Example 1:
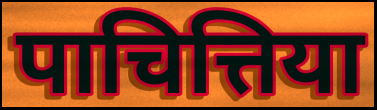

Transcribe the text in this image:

पाचित्तिया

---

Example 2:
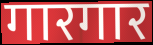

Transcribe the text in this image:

गारगार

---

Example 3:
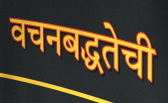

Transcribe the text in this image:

वचनबद्धतेची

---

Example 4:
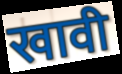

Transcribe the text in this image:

खावी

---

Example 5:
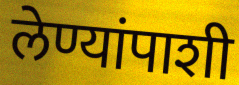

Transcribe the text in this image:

लेण्यांपाशी